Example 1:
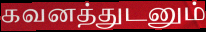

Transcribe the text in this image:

கவனத்துடனும்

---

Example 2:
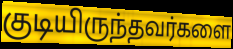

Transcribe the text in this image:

குடியிருந்தவர்களை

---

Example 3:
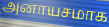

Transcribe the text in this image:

அனாயசமாக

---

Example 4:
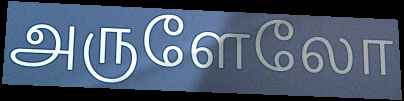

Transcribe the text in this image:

அருளேலோ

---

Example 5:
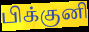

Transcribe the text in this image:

பிக்குனி